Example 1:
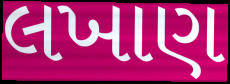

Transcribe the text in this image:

લખાણ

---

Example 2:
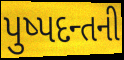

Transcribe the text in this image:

પુષ્પદન્તની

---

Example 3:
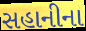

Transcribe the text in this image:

સહાનીના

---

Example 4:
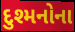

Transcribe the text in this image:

દુશ્મનોના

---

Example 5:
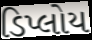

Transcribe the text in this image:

ડિપ્લોય